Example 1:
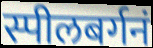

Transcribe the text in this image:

स्पीलबर्गनं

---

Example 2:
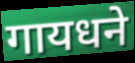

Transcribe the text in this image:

गायधने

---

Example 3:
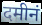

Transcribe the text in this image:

दमीनं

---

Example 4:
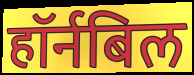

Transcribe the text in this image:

हॉर्नबिल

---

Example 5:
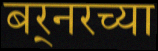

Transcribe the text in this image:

बर्नरच्या